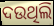
ଦଉଥିଲି